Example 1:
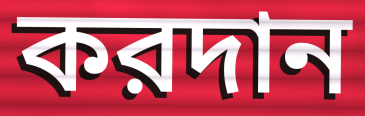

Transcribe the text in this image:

করদান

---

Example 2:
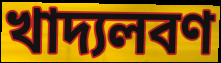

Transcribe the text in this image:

খাদ্যলবণ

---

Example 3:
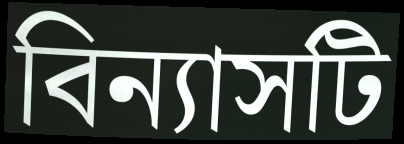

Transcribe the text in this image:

বিন্যাসটি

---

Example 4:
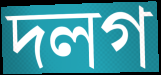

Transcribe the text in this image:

দলগ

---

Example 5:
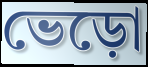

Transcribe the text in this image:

ভেড়ো